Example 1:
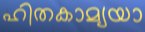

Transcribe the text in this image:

ഹിതകാമ്യയാ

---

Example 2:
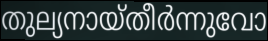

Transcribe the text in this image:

തുല്യനായ്തീർന്നുവോ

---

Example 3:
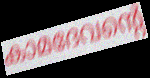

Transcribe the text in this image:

കാമദേവന്റെ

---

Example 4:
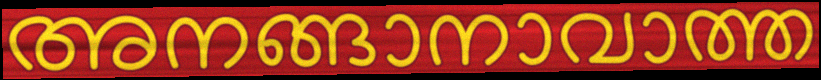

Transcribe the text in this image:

അനങ്ങാനാവാത്ത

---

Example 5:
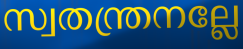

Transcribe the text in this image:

സ്വതന്ത്രനല്ലേ